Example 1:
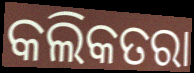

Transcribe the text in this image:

କଲିକତରା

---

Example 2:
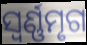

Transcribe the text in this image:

ସ୍ଵର୍ଣ୍ଣମୃଗ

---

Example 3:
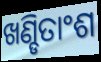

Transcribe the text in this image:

ଖଣ୍ଡିତାଂଶ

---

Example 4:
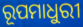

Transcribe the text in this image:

ରୂପମାଧୁରୀ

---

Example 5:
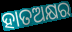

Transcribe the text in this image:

ହାତଅକ୍ଷର